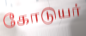
கோடுயர்